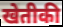
खेतीकी